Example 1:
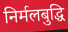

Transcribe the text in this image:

निर्मलबुद्धि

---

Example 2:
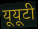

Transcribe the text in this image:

यूयूटी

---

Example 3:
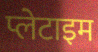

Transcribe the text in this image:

प्लेटाइम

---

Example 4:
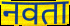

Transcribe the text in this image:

नवता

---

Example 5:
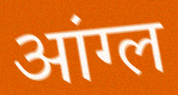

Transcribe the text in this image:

आंग्ल